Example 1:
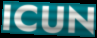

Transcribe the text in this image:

ICUN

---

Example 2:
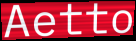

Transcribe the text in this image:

Aetto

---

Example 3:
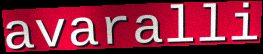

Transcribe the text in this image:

avaralli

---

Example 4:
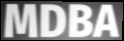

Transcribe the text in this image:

MDBA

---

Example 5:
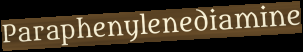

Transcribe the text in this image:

Paraphenylenediamine